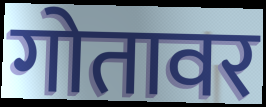
गोतावर